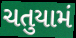
ચતુયામં